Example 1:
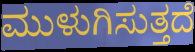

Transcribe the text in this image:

ಮುಳುಗಿಸುತ್ತದೆ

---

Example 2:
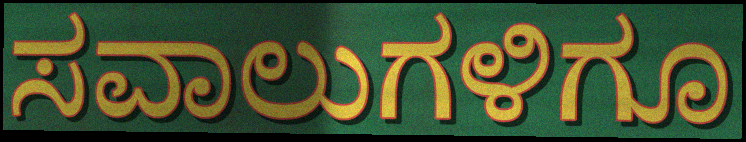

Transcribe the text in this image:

ಸವಾಲುಗಳಿಗೂ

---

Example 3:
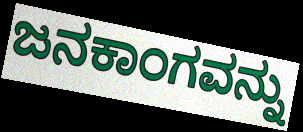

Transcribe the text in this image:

ಜನಕಾಂಗವನ್ನು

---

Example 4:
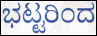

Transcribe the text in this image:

ಭಟ್ಟರಿಂದ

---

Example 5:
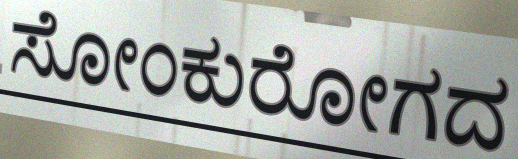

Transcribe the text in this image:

ಸೋಂಕುರೋಗದ